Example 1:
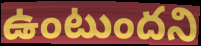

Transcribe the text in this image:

ఉంటుందని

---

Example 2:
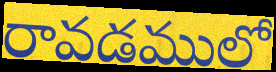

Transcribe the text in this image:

రావడములో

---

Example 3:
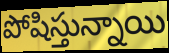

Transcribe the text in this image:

పోషిస్తున్నాయి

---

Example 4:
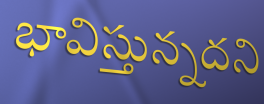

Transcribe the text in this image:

భావిస్తున్నదని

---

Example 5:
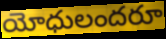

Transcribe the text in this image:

యోధులందరూ